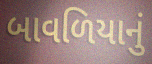
બાવળિયાનું